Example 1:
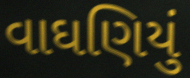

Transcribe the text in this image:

વાઘણિયું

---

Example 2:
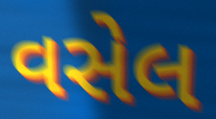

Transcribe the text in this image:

વસેલ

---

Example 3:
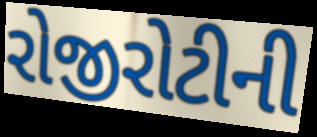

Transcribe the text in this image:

રોજીરોટીની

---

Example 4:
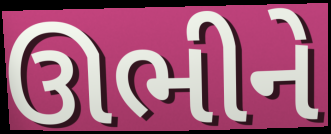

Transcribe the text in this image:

ઊભીને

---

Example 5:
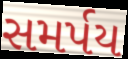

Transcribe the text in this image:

સમર્પય